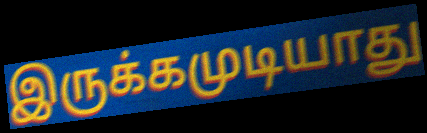
இருக்கமுடியாது